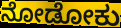
ನೋಡೋಕು